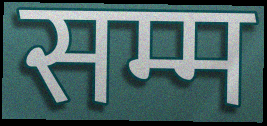
सम्म